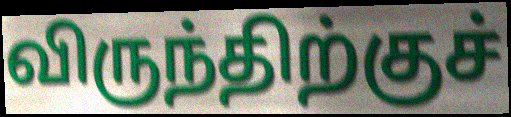
விருந்திற்குச்